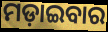
ମଡ଼ାଇବାର